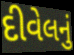
દીવેલનું